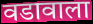
वडावाला